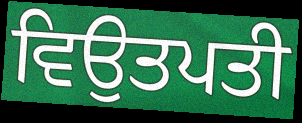
ਵਿਉਤਪਤੀ